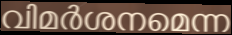
വിമർശനമെന്ന